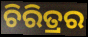
ଚିରିତ୍ରର